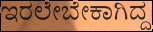
ಇರಲೇಬೇಕಾಗಿದ್ದ